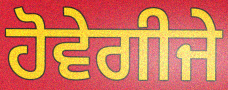
ਹੋਵੇਗੀਜੇ